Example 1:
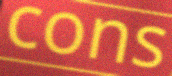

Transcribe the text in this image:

cons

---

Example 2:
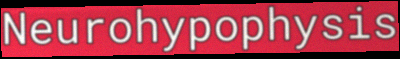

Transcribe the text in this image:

Neurohypophysis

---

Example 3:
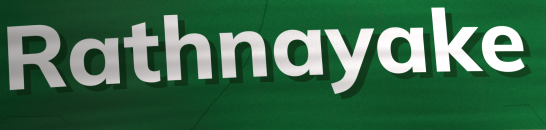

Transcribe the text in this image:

Rathnayake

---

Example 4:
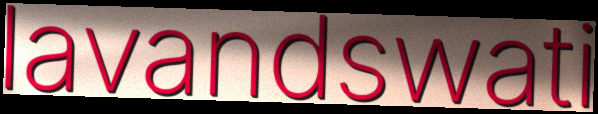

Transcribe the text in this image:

lavandswati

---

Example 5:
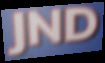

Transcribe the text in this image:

JND